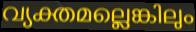
വ്യക്തമല്ലെങ്കിലും